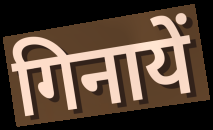
गिनायें